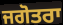
ਜਗੋਤਰਾ